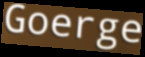
Goerge